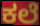
ಕಲೆ